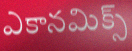
ఎకానమిక్స్